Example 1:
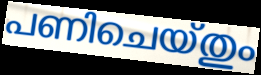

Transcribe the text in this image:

പണിചെയ്തും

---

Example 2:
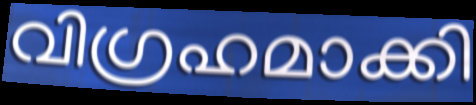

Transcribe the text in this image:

വിഗ്രഹമാക്കി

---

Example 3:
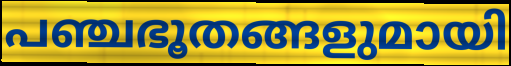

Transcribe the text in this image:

പഞ്ചഭൂതങ്ങളുമായി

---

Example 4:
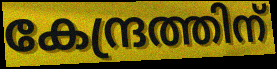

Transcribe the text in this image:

കേന്ദ്രത്തിന്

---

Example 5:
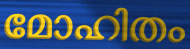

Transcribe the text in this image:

മോഹിതം